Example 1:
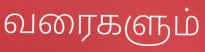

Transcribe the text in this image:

வரைகளும்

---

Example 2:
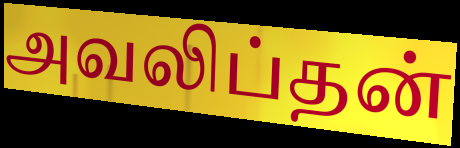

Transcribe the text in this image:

அவலிப்தன்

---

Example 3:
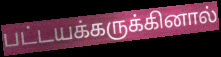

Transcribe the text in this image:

பட்டயக்கருக்கினால்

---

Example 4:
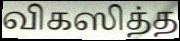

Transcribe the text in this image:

விகஸித்த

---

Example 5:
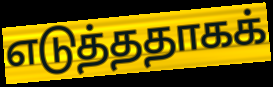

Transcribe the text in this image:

எடுத்ததாகக்